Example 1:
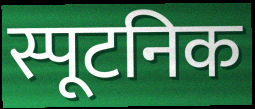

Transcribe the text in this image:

स्पूटनिक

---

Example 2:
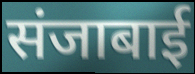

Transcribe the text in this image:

संजाबाई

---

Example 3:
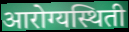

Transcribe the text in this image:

आरोग्यस्थिती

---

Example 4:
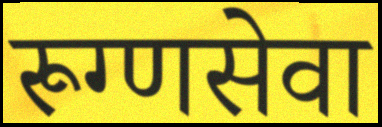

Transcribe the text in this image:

रूग्णसेवा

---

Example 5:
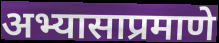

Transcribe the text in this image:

अभ्यासाप्रमाणे